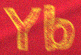
Yb